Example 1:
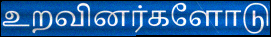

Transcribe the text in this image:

உறவினர்களோடு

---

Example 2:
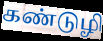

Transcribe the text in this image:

கண்டுழி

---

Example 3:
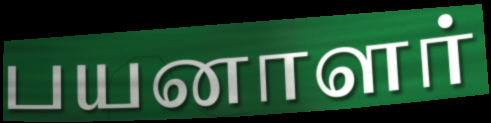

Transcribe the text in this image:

பயனாளர்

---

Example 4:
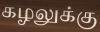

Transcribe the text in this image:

கழலுக்கு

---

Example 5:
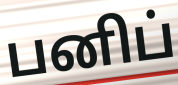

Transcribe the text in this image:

பனிப்